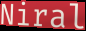
Niral